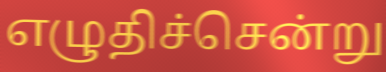
எழுதிச்சென்று